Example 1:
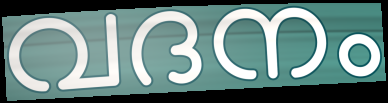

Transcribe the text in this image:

വദനം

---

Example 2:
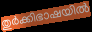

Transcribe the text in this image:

തുർക്കിഭാഷയിൽ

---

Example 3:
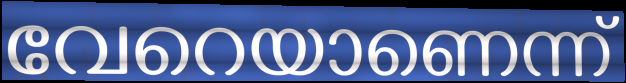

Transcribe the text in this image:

വേറെയാണെന്ന്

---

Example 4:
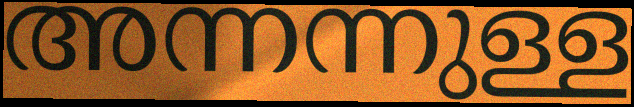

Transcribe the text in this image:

അന്നന്നുള്ള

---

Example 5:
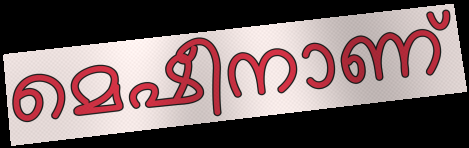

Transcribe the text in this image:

മെഷീനാണ്